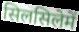
सिलसिलेमें